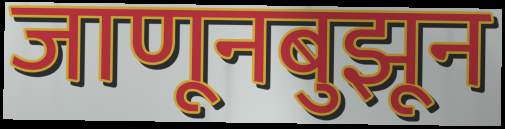
जाणूनबुझून